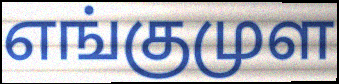
எங்குமுள